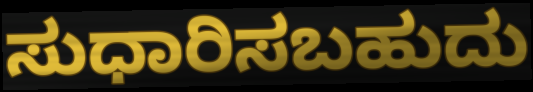
ಸುಧಾರಿಸಬಹುದು